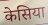
केसिया